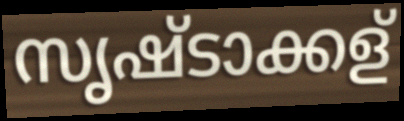
സൃഷ്ടാക്കള്